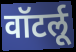
वॉटर्लू